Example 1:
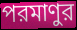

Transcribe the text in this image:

পরমাণুর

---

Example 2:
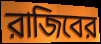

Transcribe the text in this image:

রাজিবের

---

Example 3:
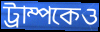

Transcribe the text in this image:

ট্রাম্পকেও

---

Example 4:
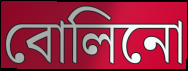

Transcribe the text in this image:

বোলিনো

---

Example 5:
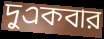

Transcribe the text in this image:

দুএকবার